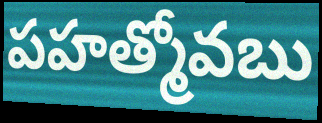
పహత్మోవబు